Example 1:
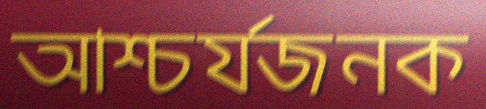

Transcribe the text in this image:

আশ্চৰ্যজনক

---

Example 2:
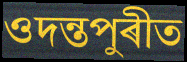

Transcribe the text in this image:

ওদন্তপুৰীত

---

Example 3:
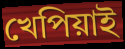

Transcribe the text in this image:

খেপিয়াই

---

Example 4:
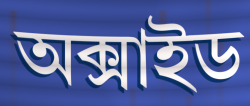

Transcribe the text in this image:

অক্সাইড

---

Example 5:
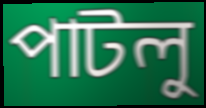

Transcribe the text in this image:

পাটলু